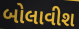
બોલાવીશ